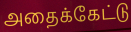
அதைக்கேட்டு